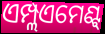
ଏମ୍ପ୍ଲଏମେଣ୍ଟ୍